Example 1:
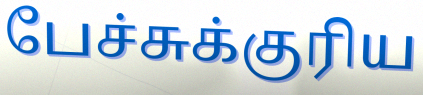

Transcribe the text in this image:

பேச்சுக்குரிய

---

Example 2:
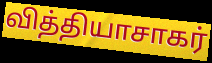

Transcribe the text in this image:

வித்தியாசாகர்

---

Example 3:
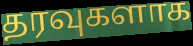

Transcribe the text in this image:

தரவுகளாக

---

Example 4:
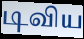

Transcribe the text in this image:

டிவிய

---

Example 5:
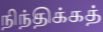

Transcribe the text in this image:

நிந்திக்கத்